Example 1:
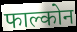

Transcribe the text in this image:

फाल्कोन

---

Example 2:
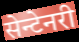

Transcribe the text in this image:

सेन्टेनरी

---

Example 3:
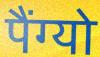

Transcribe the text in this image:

पैंग्यो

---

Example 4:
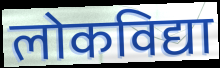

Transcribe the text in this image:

लोकविद्या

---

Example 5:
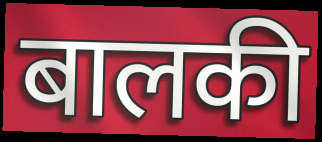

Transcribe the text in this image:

बालकी